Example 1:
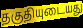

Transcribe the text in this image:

தகுதியுடையது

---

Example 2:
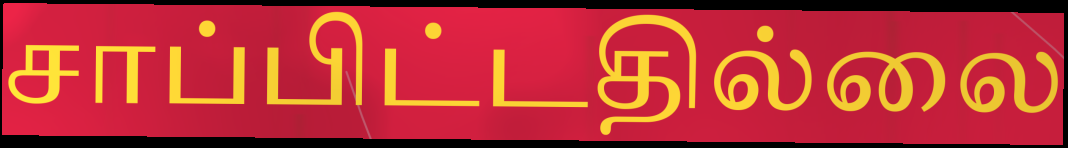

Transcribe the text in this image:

சாப்பிட்டதில்லை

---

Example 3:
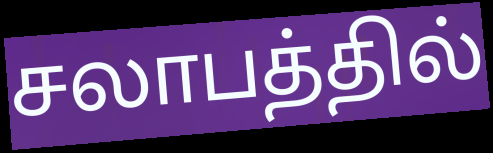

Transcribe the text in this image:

சலாபத்தில்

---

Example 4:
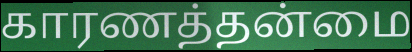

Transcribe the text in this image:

காரணத்தன்மை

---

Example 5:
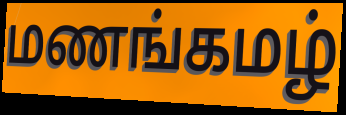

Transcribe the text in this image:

மணங்கமழ்